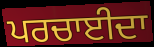
ਪਰਚਾਈਦਾ